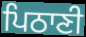
ਪਿਠਾਣੀ